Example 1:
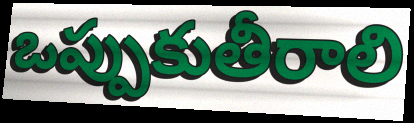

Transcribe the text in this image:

ఒప్పుకుతీరాలి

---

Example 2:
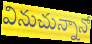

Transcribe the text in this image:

వినుచున్నానో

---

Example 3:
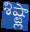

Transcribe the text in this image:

శిష్ట్లా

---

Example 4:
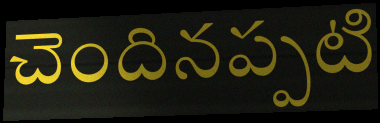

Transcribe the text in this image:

చెందినప్పటి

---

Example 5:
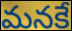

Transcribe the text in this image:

మనకే